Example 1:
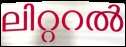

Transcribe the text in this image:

ലിറ്ററൽ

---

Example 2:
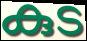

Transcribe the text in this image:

കുട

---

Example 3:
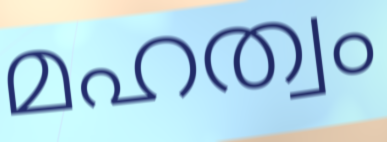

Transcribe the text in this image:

മഹത്വം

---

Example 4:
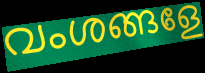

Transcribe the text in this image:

വംശങ്ങളേ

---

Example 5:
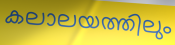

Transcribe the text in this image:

കലാലയത്തിലും